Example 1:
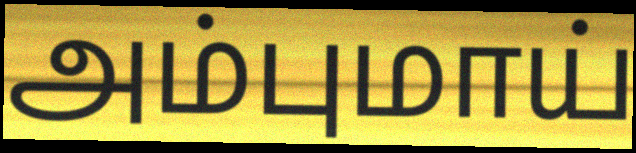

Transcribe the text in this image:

அம்புமாய்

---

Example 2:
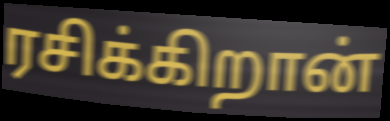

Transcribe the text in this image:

ரசிக்கிறான்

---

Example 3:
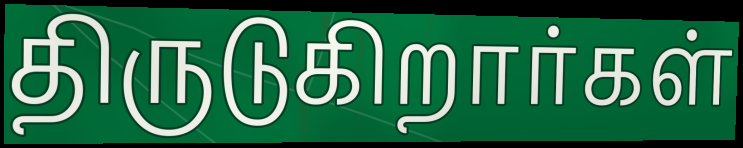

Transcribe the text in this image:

திருடுகிறார்கள்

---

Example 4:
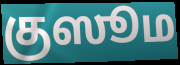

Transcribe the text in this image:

குஸூம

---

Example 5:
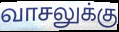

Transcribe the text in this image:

வாசலுக்கு